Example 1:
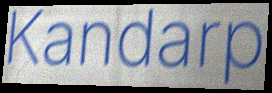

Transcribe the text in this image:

Kandarp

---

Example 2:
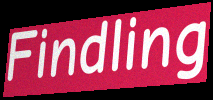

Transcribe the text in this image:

Findling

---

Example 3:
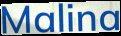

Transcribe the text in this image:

Malina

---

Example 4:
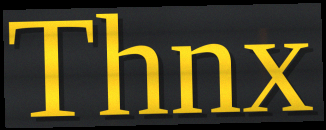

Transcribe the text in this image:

Thnx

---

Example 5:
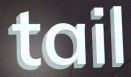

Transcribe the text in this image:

tail